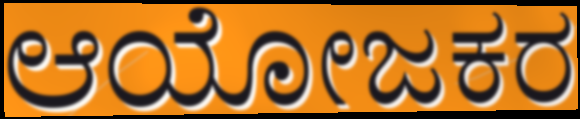
ಆಯೋಜಕರ